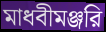
মাধবীমঞ্জরি